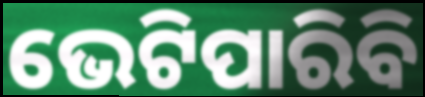
ଭେଟିପାରିବି